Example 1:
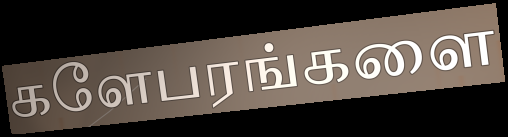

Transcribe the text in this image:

களேபரங்களை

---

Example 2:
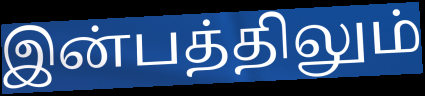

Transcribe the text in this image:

இன்பத்திலும்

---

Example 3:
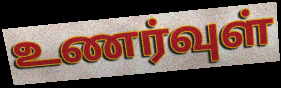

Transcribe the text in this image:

உணர்வுள்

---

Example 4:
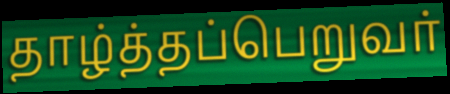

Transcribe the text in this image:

தாழ்த்தப்பெறுவர்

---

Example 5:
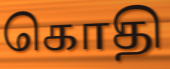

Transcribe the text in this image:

கொதி